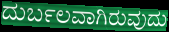
ದುರ್ಬಲವಾಗಿರುವುದು